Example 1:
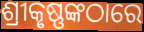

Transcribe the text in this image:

ଶ୍ରୀକୃଷ୍ଣଙ୍କଠାରେ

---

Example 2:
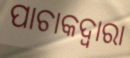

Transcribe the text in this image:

ପାଚାକଦ୍ଵାରା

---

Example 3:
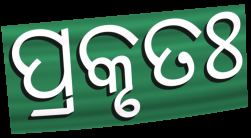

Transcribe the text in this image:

ପ୍ରକୃତଃ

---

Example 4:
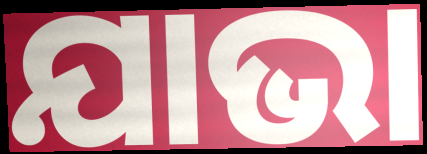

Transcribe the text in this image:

ଯାଭା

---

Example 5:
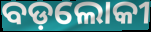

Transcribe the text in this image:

ବଡ଼ଲୋକୀ